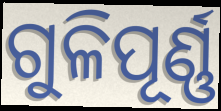
ଗୁଳିପୂର୍ଣ୍ଣ